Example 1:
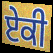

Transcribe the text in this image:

ਏਕੀ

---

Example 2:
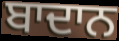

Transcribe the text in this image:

ਬਾਦਾਨ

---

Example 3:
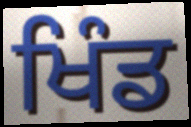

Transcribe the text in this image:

ਖਿੰਡ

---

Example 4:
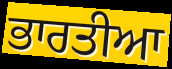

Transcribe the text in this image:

ਭਾਰਤੀਆ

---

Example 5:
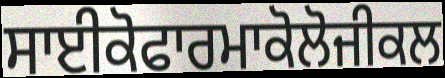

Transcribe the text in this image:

ਸਾਈਕੋਫਾਰਮਾਕੋਲੋਜੀਕਲ